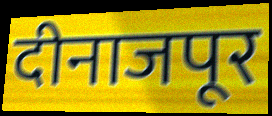
दीनाजपूर